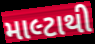
માલ્ટાથી